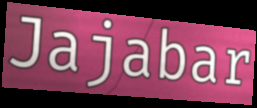
Jajabar